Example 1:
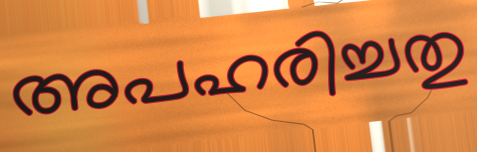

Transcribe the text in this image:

അപഹരിച്ചതു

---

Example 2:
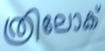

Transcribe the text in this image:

ത്രിലോക്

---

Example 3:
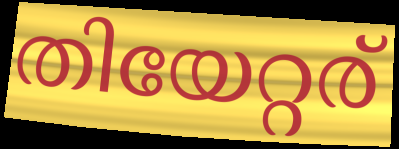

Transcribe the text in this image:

തിയേറ്റര്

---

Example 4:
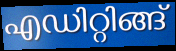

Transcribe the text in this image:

എഡിറ്റിങ്ങ്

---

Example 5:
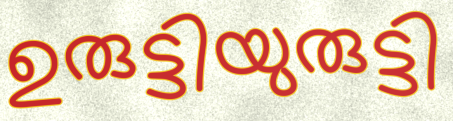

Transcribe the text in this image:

ഉരുട്ടിയുരുട്ടി